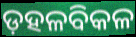
ଡ଼ହଳବିକଳ